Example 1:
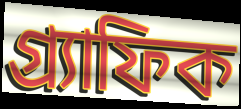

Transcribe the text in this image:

গ্র্যাফিক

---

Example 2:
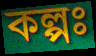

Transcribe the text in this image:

কল্পঃ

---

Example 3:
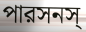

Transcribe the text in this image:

পারসনস্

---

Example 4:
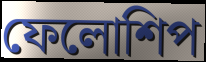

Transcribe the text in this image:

ফেলোশিপ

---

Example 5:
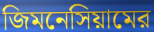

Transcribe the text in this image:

জিমনেসিয়ামের